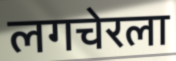
लगचेरला